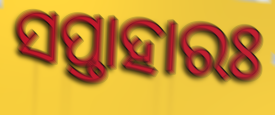
ସପ୍ତାହାରଃ